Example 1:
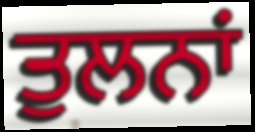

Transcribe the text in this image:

ਤੁਲਨਾਂ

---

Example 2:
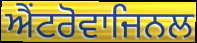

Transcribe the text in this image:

ਐਂਟਰੋਵਾਜਿਨਲ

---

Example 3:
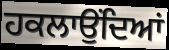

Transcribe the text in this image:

ਹਕਲਾਉਂਦਿਆਂ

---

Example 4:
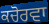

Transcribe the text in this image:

ਕਚੋਰਵਾ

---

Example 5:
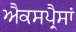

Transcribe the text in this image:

ਐਕਸਪ੍ਰੈਸਾਂ